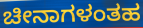
ಚೀನಾಗಳಂತಹ